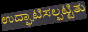
ಉದ್ಘಾಟಿಸಲ್ಪಟ್ಟಿತು